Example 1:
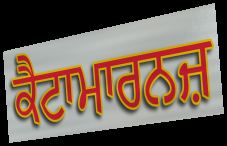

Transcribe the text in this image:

ਕੈਟਾਮਾਰਨਜ਼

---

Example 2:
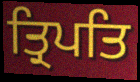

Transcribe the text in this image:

ਤ੍ਰਿਪਤਿ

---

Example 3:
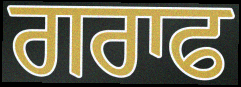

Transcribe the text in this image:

ਗਰਾਫ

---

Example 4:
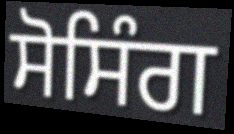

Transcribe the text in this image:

ਸੋਸਿੰਗ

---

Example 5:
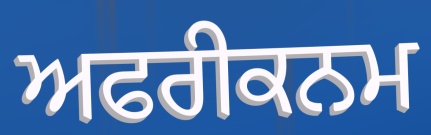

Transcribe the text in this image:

ਅਫਰੀਕਨਮ